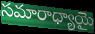
సమారాధ్యాయై